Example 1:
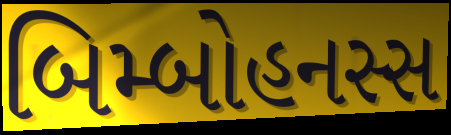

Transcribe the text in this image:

બિમ્બોહનસ્સ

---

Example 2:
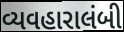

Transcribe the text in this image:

વ્યવહારાલંબી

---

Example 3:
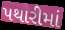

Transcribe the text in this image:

પથારીમાં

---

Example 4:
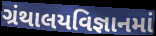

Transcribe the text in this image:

ગ્રંથાલયવિજ્ઞાનમાં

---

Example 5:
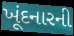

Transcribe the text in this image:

ખૂંદનારની